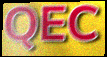
QEC